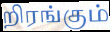
றிரங்கும்